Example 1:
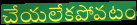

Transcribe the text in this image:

చేయలేకపోవటం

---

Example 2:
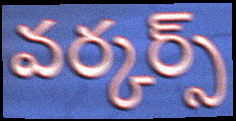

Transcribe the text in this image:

వర్కర్స్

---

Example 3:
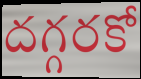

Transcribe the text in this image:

దగ్గరకో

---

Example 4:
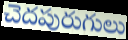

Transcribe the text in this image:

చెదపురుగులు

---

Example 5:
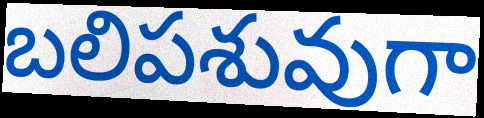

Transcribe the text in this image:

బలిపశువుగా